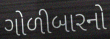
ગોળીબારનો